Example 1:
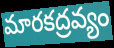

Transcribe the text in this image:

మారకద్రవ్యం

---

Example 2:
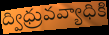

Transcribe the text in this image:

ద్విధ్రువవ్యాధికి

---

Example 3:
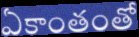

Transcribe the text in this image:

ఏకాంతంతో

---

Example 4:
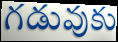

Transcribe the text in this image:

గడువుకు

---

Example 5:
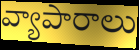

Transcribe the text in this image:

వ్యాపారాలు